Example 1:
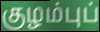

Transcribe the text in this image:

குழம்புப்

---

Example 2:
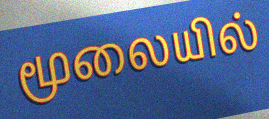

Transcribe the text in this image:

மூலையில்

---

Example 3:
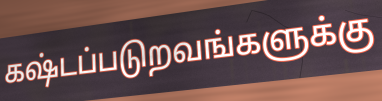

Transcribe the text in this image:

கஷ்டப்படுறவங்களுக்கு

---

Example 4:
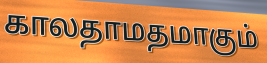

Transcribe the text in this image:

காலதாமதமாகும்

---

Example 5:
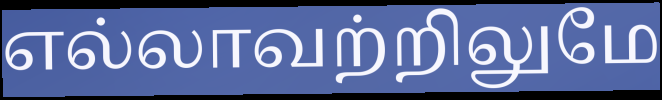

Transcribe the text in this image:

எல்லாவற்றிலுமே